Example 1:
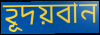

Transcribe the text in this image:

হূদয়বান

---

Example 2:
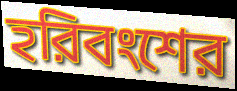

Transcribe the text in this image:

হরিবংশের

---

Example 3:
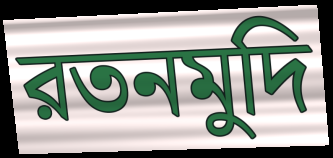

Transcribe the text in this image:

রতনমুদি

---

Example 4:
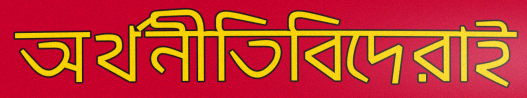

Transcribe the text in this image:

অর্থনীতিবিদেরাই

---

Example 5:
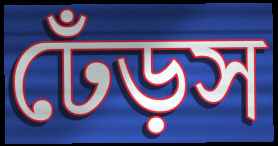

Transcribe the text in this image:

ঢেঁড়স